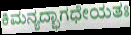
ಕಿಮನ್ಯದ್ಭಾಗಧೇಯತಃ